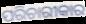
ପରିଚାରୀକାର